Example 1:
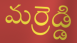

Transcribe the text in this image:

మర్రెడ్డి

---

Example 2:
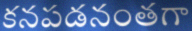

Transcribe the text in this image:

కనపడనంతగా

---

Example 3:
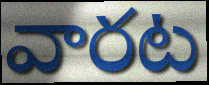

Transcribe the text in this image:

వారట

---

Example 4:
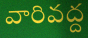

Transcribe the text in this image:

వారివద్ద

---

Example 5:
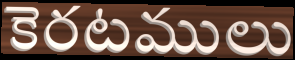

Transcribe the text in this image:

కెరటములు